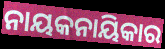
ନାୟକନାୟିକାର